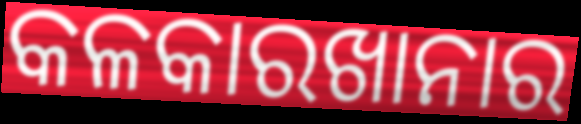
କଳକାରଖାନାର